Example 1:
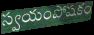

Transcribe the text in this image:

స్వయంపోషకం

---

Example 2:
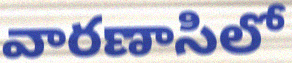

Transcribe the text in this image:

వారణాసిలో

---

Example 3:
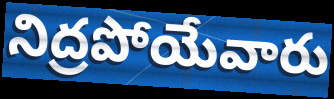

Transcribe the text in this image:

నిద్రపోయేవారు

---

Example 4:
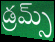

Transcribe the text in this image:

డ్రమ్స్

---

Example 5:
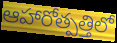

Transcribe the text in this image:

ఆహారోత్పత్తిలో